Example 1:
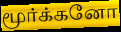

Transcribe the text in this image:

மூர்க்கனோ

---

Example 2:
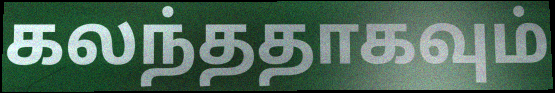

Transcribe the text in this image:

கலந்ததாகவும்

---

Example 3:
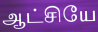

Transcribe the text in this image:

ஆட்சியே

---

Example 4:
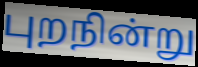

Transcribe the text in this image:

புறநின்று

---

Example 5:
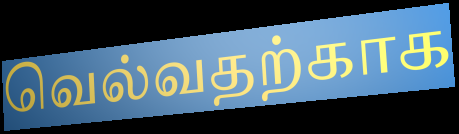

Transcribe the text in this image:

வெல்வதற்காக